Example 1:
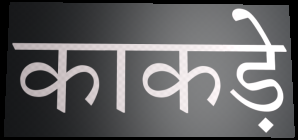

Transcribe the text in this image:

काकड़े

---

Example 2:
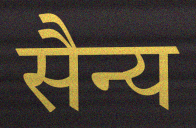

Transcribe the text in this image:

सैन्‍य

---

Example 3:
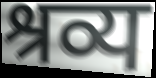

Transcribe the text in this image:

श्रव्य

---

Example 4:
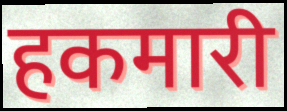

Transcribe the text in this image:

हकमारी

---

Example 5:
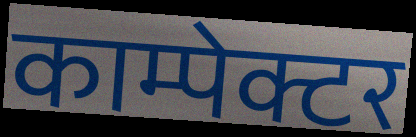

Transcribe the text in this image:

काम्पेक्टर